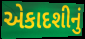
એકાદશીનું